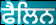
ਫੈਲਿਨ